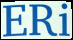
ERi